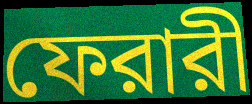
ফেরারী